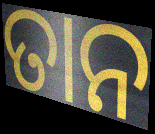
ତାନ